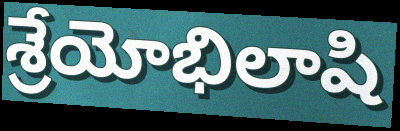
శ్రేయోభిలాషి